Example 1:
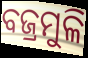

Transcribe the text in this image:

ବଜ୍ରମୁଳି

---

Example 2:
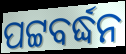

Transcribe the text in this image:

ପଟ୍ଟବର୍ଦ୍ଧନ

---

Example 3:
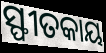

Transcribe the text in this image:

ସ୍ଫୀତକାୟ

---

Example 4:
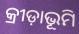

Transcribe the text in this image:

କ୍ରୀଡ଼ାଭୂମି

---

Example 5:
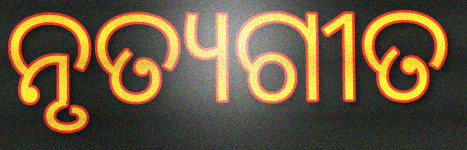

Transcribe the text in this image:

ନୃତ୍ୟଗୀତ